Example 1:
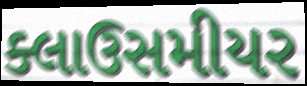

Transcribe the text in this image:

ક્લાઉસમીયર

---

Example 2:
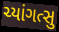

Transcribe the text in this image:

ચ્યાંગત્સુ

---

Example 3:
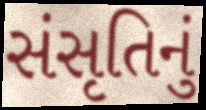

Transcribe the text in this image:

સંસૃતિનું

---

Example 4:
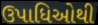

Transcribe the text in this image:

ઉપાધિઓથી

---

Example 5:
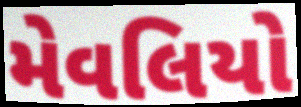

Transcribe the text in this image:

મેવલિયો